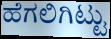
ಹೆಗಲಿಗಿಟ್ಟು